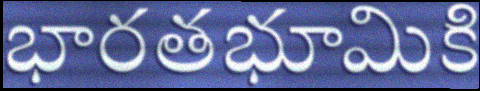
భారతభూమికి